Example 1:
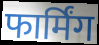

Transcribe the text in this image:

फार्मिंग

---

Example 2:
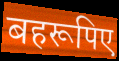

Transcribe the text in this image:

बहरूपिए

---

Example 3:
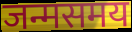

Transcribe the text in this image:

जन्मसमय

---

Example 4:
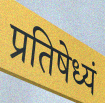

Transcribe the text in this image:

प्रतिषेध्यं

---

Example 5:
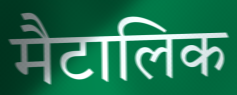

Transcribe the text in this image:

मैटालिक